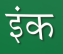
इंक